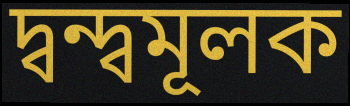
দ্বন্দ্বমূলক